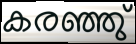
കരഞ്ഞു്